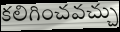
కలిగించవచ్చు